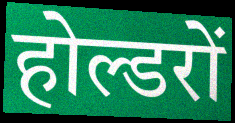
होल्‍डरों